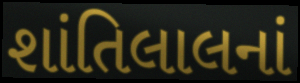
શાંતિલાલનાં